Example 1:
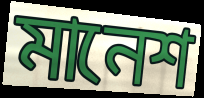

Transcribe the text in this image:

মানেশ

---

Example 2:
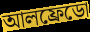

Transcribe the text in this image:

আলফ্রেডো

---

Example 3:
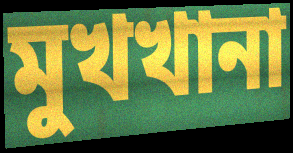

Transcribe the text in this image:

মুখখানা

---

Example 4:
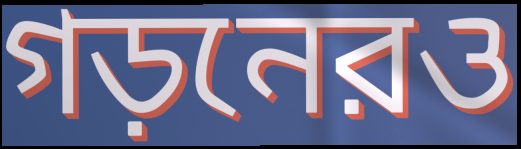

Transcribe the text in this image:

গড়নেরও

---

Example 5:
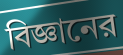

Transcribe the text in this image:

বিজ্ঞানের